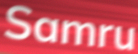
Samru